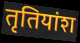
तृतियांश